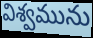
విశ్వమును